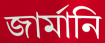
জার্মানি